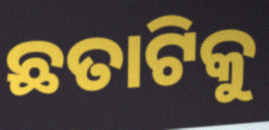
ଛତାଟିକୁ